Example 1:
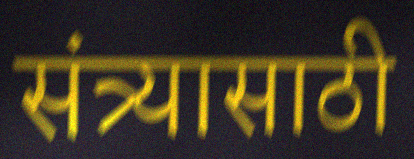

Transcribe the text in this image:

संत्र्यासाठी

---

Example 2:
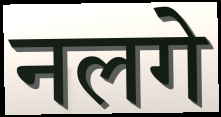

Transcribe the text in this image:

नलगे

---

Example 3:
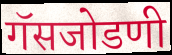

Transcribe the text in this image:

गॅसजोडणी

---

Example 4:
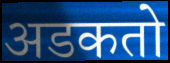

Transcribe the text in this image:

अडकतो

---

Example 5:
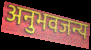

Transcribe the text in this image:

अनुभवजन्य